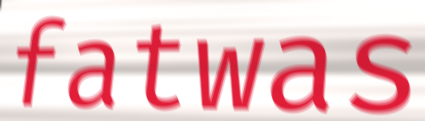
fatwas